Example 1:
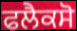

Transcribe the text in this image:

ਫਲੈਕਸੋ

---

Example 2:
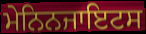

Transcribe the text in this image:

ਮੇਨਿਨਜਾਇਟਸ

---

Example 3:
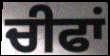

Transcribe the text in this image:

ਚੀਫਾਂ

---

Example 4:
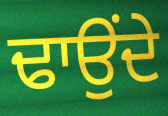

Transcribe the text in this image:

ਢਾਉਂਦੇ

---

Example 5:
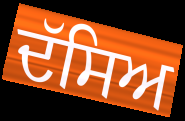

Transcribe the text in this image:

ਦੱਸਿਅ